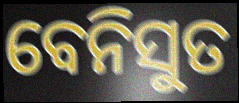
ବେନିସୁତ